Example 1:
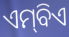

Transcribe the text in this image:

ଏମ୍‌ବିଏ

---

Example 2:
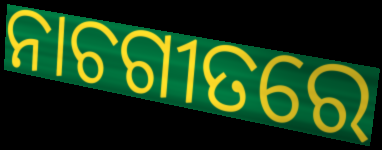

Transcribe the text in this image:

ନାଚଗୀତରେ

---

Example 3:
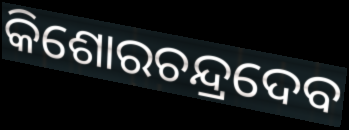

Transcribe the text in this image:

କିଶୋରଚନ୍ଦ୍ରଦେବ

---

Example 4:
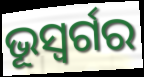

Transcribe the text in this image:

ଭୂସ୍ବର୍ଗର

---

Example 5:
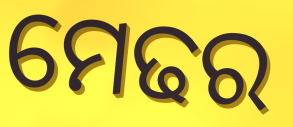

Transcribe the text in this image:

ମେଢର